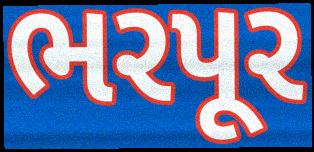
ભરપૂર